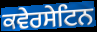
ਕਵੇਰਸੇਟਿਨ